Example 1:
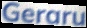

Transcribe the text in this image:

Geraru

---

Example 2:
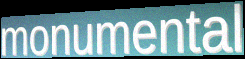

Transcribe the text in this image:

monumental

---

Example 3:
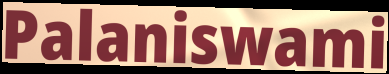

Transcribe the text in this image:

Palaniswami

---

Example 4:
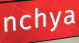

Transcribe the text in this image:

nchya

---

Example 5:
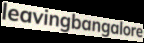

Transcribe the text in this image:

leavingbangalore